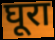
घूरा